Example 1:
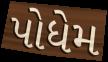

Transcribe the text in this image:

પોધેમ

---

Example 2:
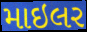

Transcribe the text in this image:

માઇલર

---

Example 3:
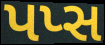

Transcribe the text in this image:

પપ્સ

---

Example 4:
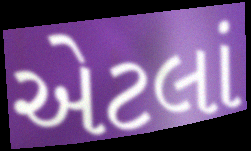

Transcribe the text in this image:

એટલાં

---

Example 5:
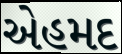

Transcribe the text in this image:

એહમદ